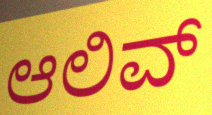
ಆಲಿವ್